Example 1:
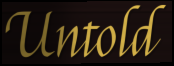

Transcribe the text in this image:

Untold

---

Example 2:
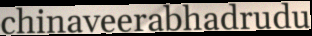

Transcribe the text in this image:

chinaveerabhadrudu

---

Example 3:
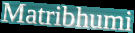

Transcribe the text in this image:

Matribhumi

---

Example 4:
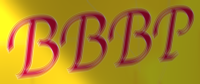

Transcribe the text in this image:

BBBP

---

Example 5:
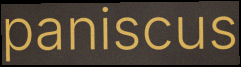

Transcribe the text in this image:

paniscus